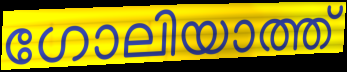
ഗോലിയാത്ത്